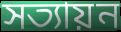
সত্যায়ন